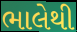
ભાલેથી